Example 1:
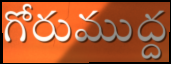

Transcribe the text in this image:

గోరుముద్ద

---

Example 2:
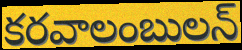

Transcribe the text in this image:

కరవాలంబులన్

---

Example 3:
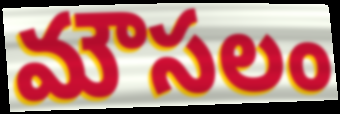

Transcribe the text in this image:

మౌసలం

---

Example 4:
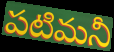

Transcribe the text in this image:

పటిమనీ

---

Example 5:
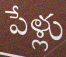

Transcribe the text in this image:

పేళ్లు